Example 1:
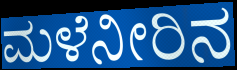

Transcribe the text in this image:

ಮಳೆನೀರಿನ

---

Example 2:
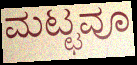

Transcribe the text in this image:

ಮಟ್ಟವೂ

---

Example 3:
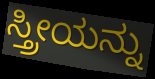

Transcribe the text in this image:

ಸ್ತ್ರೀಯನ್ನು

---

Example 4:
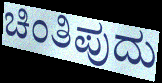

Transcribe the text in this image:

ಚಿಂತಿಪುದು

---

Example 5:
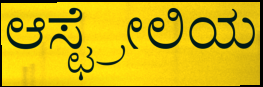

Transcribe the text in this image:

ಆಸ್ಟ್ರೇಲಿಯ